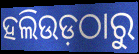
ହଲିଉଡ଼ଠାରୁ